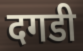
दगडी